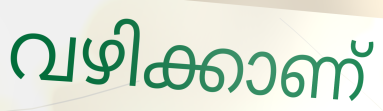
വഴിക്കാണ്